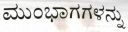
ಮುಂಭಾಗಗಳನ್ನು